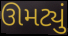
ઊમટ્યું